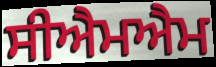
ਸੀਐਮਐਮ